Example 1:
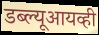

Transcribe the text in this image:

डब्ल्यूआयव्ही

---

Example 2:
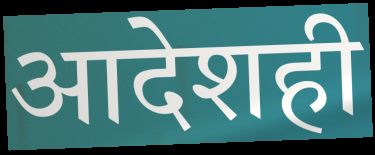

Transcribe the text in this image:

आदेशही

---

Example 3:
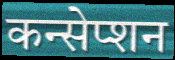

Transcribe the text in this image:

कन्सेप्शन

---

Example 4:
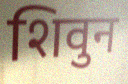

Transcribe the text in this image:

शिवुन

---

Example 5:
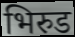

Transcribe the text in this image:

भिरुड